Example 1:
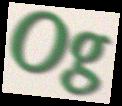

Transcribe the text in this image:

Og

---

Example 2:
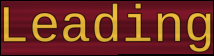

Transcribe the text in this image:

Leading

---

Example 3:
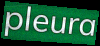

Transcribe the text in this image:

pleura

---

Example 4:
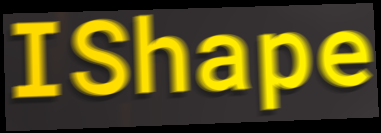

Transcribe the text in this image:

IShape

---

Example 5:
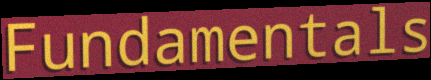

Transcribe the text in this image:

Fundamentals